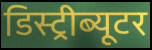
डिस्ट्रीब्यूटर